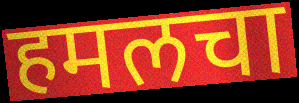
हमलचा